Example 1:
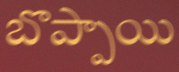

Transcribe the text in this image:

బొప్పాయి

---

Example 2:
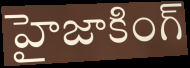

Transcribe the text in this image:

హైజాకింగ్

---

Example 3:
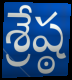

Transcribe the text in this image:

శ్రేష్ఠ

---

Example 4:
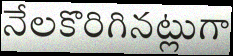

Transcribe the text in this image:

నేలకొరిగినట్లుగా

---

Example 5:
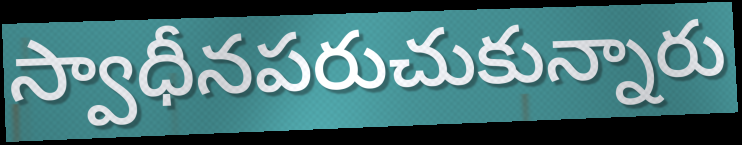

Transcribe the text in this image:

స్వాధీనపరుచుకున్నారు